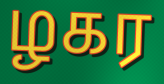
ழகர